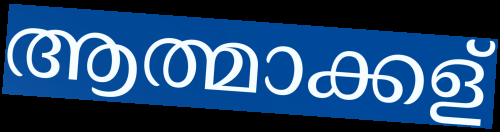
ആത്മാക്കള്